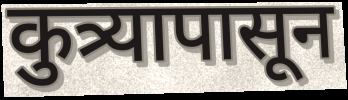
कुत्र्यापासून